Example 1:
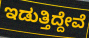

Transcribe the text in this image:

ಇಡುತ್ತಿದ್ದೇವೆ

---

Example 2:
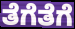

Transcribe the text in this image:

ತೆಗೆತೆಗೆ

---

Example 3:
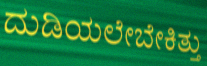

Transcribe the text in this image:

ದುಡಿಯಲೇಬೇಕಿತ್ತು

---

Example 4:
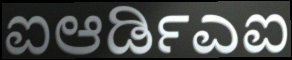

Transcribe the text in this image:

ಐಆರ್ಡಿಎಐ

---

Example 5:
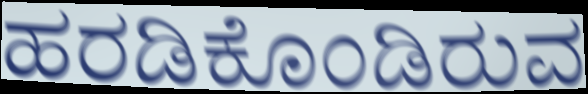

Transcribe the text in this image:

ಹರಡಿಕೊಂಡಿರುವ